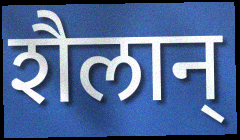
शैलान्